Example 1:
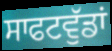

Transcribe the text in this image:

ਸਾਫਟਵੁੱਡਾਂ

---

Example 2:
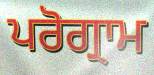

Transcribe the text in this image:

ਪਰੋਗ੍ਰਾਮ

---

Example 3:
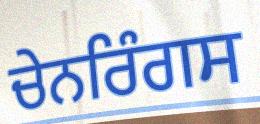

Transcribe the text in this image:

ਚੇਨਰਿੰਗਸ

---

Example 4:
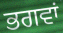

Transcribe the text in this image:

ਭਗਵਾਂ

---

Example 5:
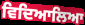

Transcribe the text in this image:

ਵਿਦਿਆਲਿਆ